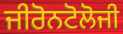
ਜੀਰੋਨਟੋਲੋਜੀ